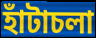
হাঁটাচলা